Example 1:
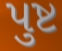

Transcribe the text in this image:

પુષ્ટ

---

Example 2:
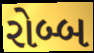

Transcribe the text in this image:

રોબ્બ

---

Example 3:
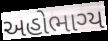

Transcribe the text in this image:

અહોભાગ્ય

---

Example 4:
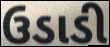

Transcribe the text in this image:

ઉડાડી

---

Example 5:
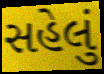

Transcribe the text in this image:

સહેલું